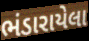
ભંડારાયેલા